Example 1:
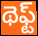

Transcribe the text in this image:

థెఫ్ట్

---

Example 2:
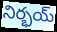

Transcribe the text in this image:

నిర్భయ్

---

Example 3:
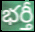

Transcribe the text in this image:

భర్తీ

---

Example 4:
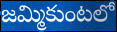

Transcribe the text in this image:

జమ్మికుంటలో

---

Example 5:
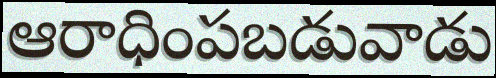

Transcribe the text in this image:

ఆరాధింపబడువాడు